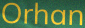
Orhan